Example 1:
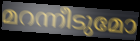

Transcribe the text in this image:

മറന്നീടുമോ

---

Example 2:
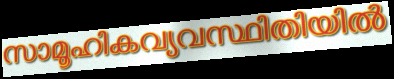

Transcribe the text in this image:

സാമൂഹികവ്യവസ്ഥിതിയിൽ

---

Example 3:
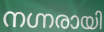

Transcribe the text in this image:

നഗ്നരായി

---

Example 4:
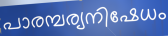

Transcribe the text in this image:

പാരമ്പര്യനിഷേധം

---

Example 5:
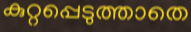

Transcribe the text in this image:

കുറ്റപ്പെടുത്താതെ